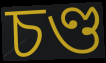
চণ্ড